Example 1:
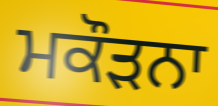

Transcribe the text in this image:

ਮਕੌੜਨਾ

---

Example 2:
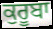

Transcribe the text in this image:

ਕੁਰੂਬਾ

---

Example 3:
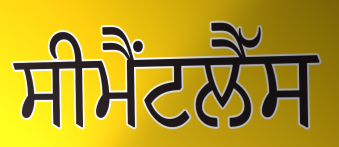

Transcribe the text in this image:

ਸੀਮੈਂਟਲੈੱਸ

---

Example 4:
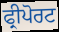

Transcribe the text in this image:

ਫ੍ਰੀਪੋਰਟ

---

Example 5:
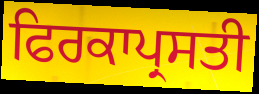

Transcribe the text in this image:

ਫਿਰਕਾਪ੍ਰਸਤੀ